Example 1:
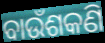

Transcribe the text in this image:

ବାଉଁଶକଣି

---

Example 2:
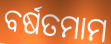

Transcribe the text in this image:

ବର୍ଷତମାମ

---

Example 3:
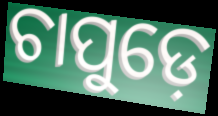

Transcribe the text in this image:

ଚାପୁଡ଼େ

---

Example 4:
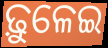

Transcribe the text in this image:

ଢ଼ୁଳେଇ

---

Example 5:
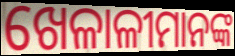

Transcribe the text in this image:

ଖେଳାଳୀମାନଙ୍କ